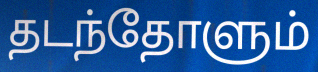
தடந்தோளும்